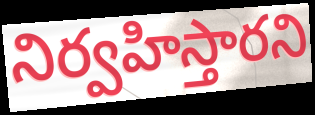
నిర్వహిస్తారని